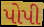
પોપી